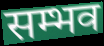
सम्भव